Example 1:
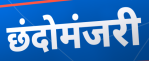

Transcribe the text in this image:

छंदोमंजरी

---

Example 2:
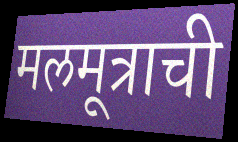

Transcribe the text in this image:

मलमूत्राची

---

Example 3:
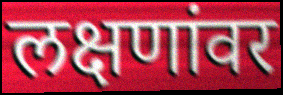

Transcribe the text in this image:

लक्षणांवर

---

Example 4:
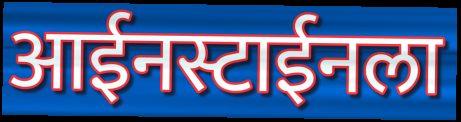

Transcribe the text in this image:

आईनस्टाईनला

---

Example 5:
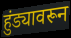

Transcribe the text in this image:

हुंड्यावरून